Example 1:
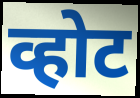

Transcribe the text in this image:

व्होट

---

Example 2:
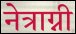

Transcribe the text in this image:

नेत्राग्नी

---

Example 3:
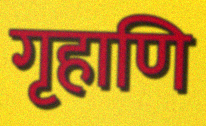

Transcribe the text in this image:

गृहाणि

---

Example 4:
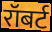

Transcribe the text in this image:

रॉबर्ट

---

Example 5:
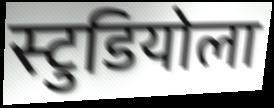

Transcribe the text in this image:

स्टुडियोला